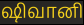
ஷிவானி